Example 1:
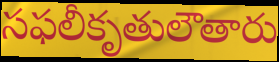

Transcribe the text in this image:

సఫలీకృతులౌతారు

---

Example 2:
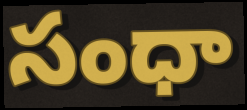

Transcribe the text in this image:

సంధా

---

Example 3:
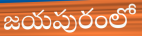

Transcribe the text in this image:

జయపురంలో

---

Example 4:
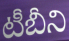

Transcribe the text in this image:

టీబీని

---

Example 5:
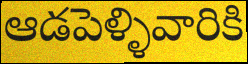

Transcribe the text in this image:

ఆడపెళ్ళివారికి